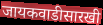
जायकवाडीसारखी